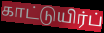
காட்டுயிர்ப்